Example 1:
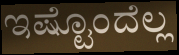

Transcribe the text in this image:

ಇಷ್ಟೊಂದೆಲ್ಲ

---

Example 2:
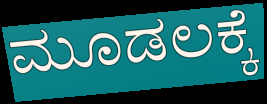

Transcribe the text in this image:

ಮೂಡಲಕ್ಕೆ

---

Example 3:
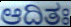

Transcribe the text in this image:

ಆದಿತಃ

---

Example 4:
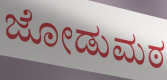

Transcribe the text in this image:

ಜೋಡುಮಠ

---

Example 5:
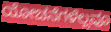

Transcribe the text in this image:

ಯೋಚನೆಗಳೆಲ್ಲವೂ